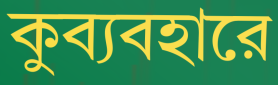
কুব্যবহারে